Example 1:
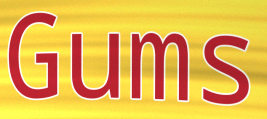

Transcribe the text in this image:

Gums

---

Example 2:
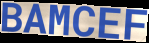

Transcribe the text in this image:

BAMCEF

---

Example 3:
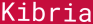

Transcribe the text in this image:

Kibria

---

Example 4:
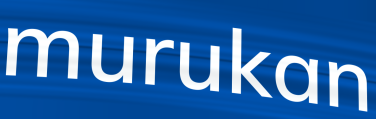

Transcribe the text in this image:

murukan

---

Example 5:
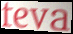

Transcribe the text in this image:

teva